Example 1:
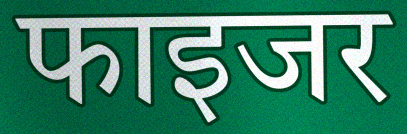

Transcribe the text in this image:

फाइजर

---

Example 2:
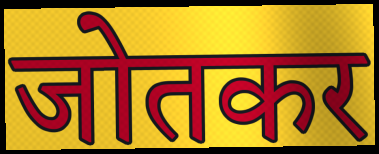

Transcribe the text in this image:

जोतकर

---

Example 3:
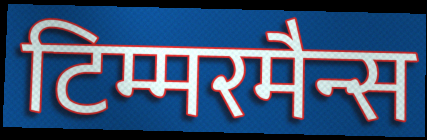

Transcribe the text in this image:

टिम्मरमैन्स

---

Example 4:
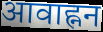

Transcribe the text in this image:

आवाह्नन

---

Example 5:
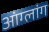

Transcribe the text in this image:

आंग्लांग